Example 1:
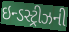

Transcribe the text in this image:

ઇન્ડસ્ટ્રીઝની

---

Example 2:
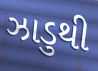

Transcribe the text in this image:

ઝાડુથી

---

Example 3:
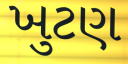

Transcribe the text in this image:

ખુટણ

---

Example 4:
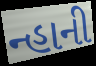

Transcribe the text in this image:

ન્હાની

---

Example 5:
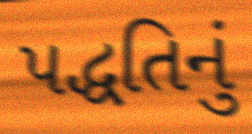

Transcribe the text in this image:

પદ્ધતિનું